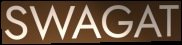
SWAGAT